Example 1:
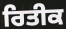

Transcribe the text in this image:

ਰਿਤੀਕ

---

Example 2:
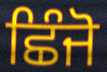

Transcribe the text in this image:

ਛਿੰਜੋ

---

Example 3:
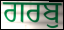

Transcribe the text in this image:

ਗਰਬੁ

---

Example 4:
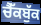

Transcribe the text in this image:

ਚੈੱਕਬੁੱਕ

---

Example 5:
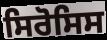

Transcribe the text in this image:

ਸਿਰੋਸਿਸ